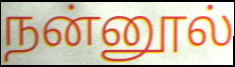
நன்னூல்